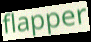
flapper